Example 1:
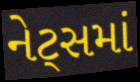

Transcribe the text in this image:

નેટ્સમાં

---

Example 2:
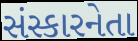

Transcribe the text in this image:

સંસ્કારનેતા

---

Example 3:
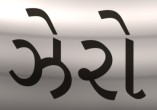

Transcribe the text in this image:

ઝેરો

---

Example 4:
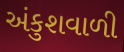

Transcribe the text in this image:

અંકુશવાળી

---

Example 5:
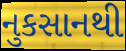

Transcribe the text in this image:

નુકસાનથી